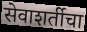
सेवाशर्तीचा